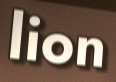
lion